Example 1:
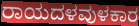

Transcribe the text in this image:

ರಾಯದಳವುಳಕಾರ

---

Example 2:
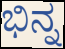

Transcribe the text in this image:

ಭಿನ್ನ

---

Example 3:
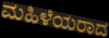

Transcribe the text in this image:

ಮಹಿಳೆಯರಾದ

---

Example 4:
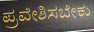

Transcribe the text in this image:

ಪ್ರವೇಶಿಸಬೇಕು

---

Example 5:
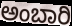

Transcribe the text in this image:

ಅಂಬಾರಿ